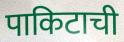
पाकिटाची